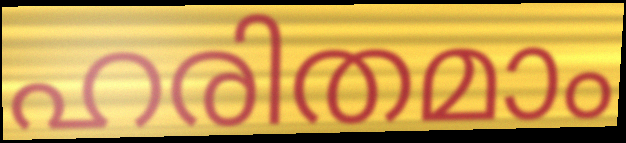
ഹരിതമാം